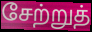
சேற்றுத்